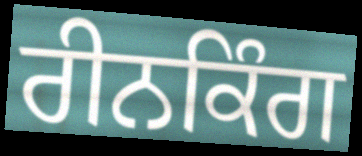
ਰੀਨਕਿੰਗ